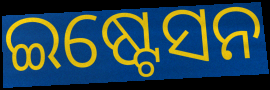
ଇଷ୍ଟେସନ